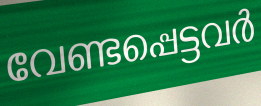
വേണ്ടപ്പെട്ടവർ